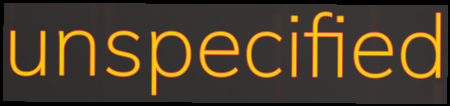
unspecified